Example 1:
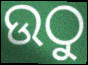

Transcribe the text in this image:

ଉଠୁ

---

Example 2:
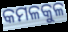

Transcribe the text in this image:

କମଳକୁଳ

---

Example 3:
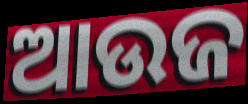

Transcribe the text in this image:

ଆଉଜ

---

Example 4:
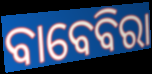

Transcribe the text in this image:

ବାବେବିରା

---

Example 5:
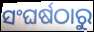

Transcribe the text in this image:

ସଂଘର୍ଷଠାରୁ